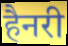
हैनरी